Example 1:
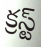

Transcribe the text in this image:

క్రస్ట్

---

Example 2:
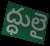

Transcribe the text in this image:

ద్ధులై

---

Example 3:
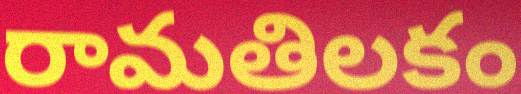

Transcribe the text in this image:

రామతిలకం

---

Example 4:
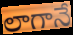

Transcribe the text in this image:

లాగానే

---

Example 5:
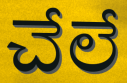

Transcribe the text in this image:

చేలే